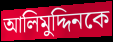
আলিমুদ্দিনকে